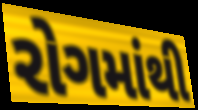
રોગમાંથી